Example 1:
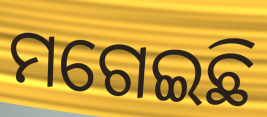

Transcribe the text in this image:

ମଗେଇଛି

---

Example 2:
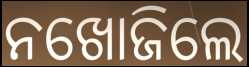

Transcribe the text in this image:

ନଖୋଜିଲେ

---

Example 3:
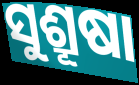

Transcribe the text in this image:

ସୁଶ୍ରୂଷା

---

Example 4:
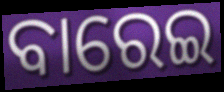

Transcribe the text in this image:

ବାରେଇ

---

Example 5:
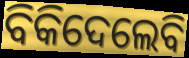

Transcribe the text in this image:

ବିକିଦେଲେବି